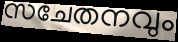
സചേതനവും